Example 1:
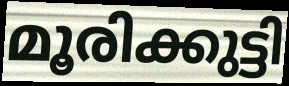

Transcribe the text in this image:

മൂരിക്കുട്ടി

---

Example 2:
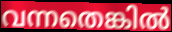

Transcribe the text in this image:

വന്നതെങ്കിൽ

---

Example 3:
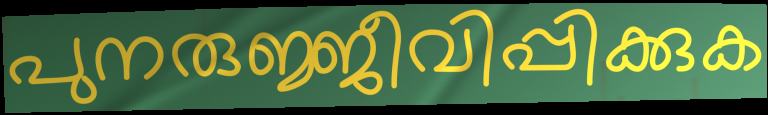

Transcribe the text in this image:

പുനരുജ്ജീവിപ്പിക്കുക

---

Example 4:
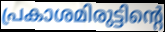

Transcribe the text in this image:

പ്രകാശമിരുട്ടിന്റെ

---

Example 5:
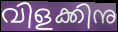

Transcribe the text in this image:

വിളക്കിനു